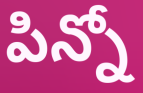
పిన్నో